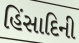
હિંસાદિની